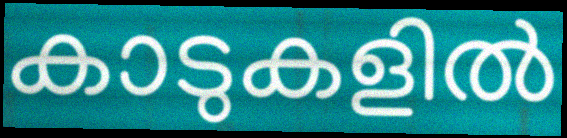
കാടുകളിൽ